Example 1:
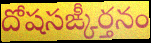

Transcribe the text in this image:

దోషసఙ్కీర్తనం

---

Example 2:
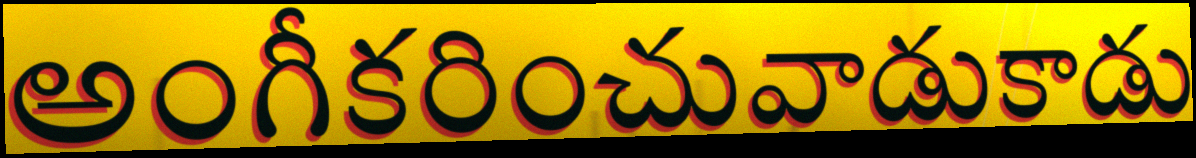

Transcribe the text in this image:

అంగీకరించువాడుకాడు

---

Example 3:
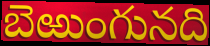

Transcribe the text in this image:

బెఱుంగునది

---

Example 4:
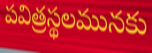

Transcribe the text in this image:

పవిత్రస్థలమునకు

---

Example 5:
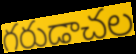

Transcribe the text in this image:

గరుడాచల